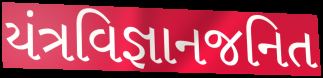
યંત્રવિજ્ઞાનજનિત